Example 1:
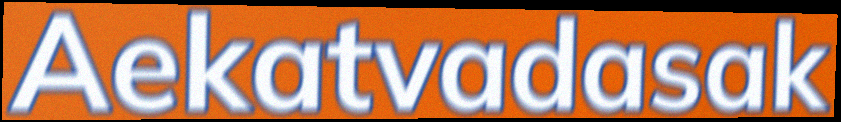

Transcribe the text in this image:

Aekatvadasak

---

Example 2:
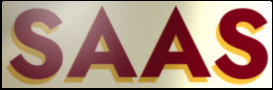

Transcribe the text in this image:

SAAS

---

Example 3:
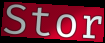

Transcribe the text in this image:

Stor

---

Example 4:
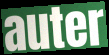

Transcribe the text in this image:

auter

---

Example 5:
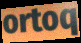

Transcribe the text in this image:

ortoq